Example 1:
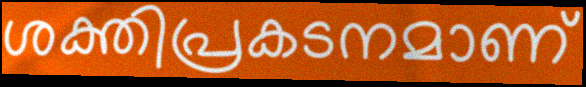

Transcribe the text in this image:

ശക്തിപ്രകടനമാണ്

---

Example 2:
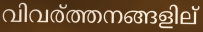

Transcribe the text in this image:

വിവര്ത്തനങ്ങളില്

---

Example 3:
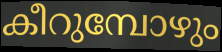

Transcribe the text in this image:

കീറുമ്പോഴും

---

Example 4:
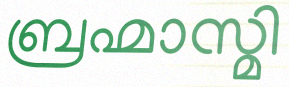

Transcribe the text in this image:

ബ്രഹ്മാസ്മി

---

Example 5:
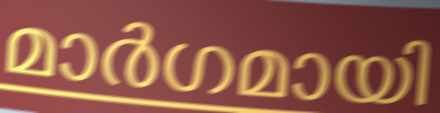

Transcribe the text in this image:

മാർഗമായി